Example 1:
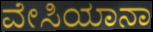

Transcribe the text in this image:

ವೇಸಿಯಾನಾ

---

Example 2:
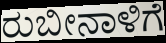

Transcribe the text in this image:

ರುಬೀನಾಳಿಗೆ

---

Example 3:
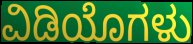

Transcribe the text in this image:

ವಿಡಿಯೊಗಳು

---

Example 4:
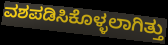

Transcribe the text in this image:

ವಶಪಡಿಸಿಕೊಳ್ಳಲಾಗಿತ್ತು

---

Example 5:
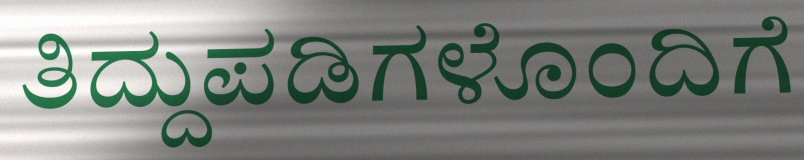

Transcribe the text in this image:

ತಿದ್ದುಪಡಿಗಳೊಂದಿಗೆ